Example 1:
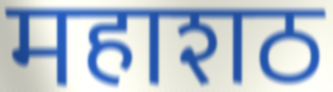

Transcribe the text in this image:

महाशठ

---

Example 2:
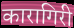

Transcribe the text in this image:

कारागिरी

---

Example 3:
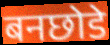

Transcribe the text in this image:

बनछोडे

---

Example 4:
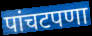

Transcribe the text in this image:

पांचटपणा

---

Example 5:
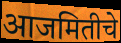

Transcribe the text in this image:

आजमितीचे